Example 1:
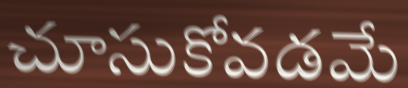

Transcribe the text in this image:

చూసుకోవడమే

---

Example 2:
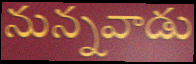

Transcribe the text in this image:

నున్నవాడు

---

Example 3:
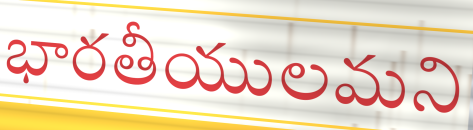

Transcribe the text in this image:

భారతీయులమని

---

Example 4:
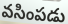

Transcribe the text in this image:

వసింపడు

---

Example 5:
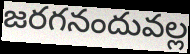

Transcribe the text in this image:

జరగనందువల్ల